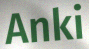
Anki